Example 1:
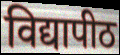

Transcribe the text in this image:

विद्यापीठ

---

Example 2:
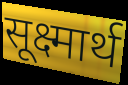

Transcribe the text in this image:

सूक्ष्मार्थ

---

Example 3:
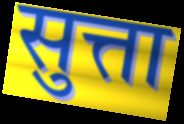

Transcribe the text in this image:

सुत्ता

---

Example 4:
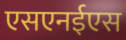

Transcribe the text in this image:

एसएनईएस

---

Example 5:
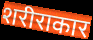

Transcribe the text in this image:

शरीराकार